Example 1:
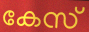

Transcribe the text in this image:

കേസ്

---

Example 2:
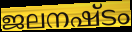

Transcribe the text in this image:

ജലനഷ്ടം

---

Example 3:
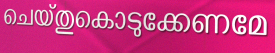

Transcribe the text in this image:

ചെയ്തുകൊടുക്കേണമേ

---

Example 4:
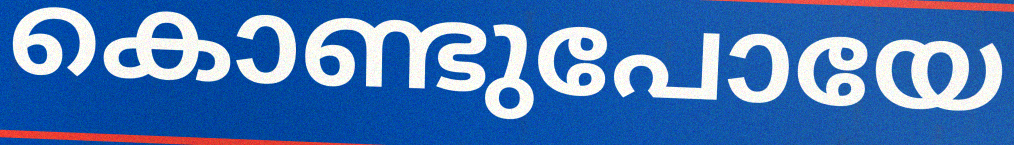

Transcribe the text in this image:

കൊണ്ടുപോയേ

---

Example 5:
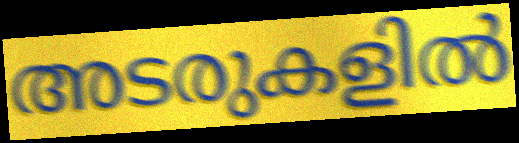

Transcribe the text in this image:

അടരുകളിൽ